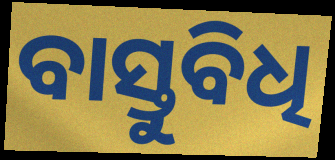
ବାସ୍ତୁବିଧି